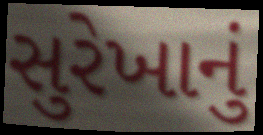
સુરેખાનું